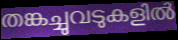
തങ്കച്ചുവടുകളിൽ